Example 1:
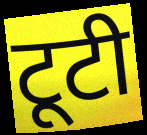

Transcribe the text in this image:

टूटी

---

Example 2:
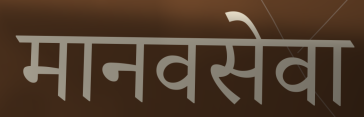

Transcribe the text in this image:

मानवसेवा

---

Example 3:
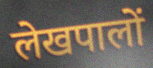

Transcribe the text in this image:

लेखपालों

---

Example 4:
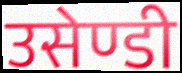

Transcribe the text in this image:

उसेण्डी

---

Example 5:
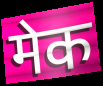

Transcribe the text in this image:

मेक